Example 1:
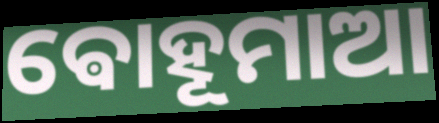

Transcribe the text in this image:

ଵୋହୂମାଆ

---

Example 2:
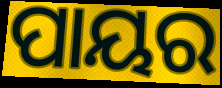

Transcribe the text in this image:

ପାୟର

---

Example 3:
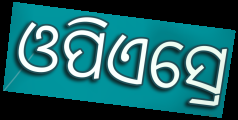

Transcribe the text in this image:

ଓପିଏସ୍ରେ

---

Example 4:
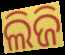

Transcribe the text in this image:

ଲିଜି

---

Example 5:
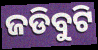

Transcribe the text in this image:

ଜଡିବୁଟି